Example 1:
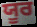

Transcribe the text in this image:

ਯੂਰ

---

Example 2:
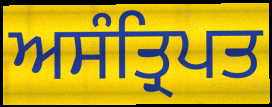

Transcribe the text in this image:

ਅਸੰਤ੍ਰਿਪਤ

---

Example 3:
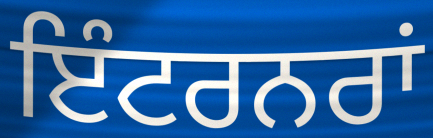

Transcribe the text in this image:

ਇੰਟਰਨਰਾਂ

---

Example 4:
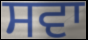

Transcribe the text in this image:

ਸਵਾ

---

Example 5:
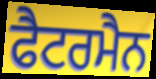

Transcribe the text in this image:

ਫੈਟਰਮੈਨ